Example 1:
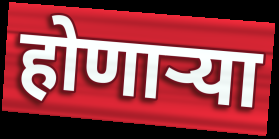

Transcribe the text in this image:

होणार्‍या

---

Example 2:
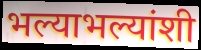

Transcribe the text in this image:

भल्याभल्यांशी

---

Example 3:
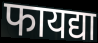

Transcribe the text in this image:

फायद्या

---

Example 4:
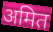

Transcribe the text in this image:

अमित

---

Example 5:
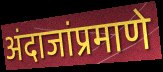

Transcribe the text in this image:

अंदाजांप्रमाणे